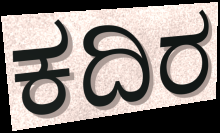
ಕದಿರ